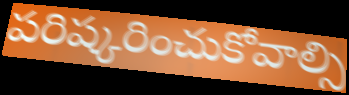
పరిష్కరించుకోవాల్సి